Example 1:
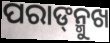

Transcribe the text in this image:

ପରାଙ୍‌ନ୍ମୁଖ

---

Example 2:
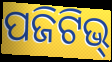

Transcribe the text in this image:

ପଜିଟିଭ୍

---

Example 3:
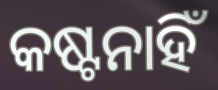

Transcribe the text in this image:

କଷ୍ଟନାହିଁ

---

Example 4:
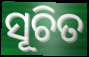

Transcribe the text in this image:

ସୂଚିତ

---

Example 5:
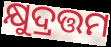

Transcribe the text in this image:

କ୍ଷୁଦ୍ରତ୍ତମ